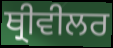
ਥ੍ਰੀਵੀਲਰ